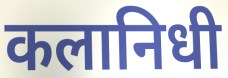
कलानिधी